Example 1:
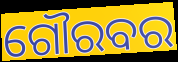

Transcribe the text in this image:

ଗୌରବର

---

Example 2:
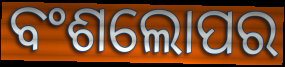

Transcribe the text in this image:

ବଂଶଲୋପର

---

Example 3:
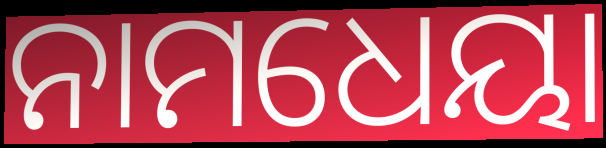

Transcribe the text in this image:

ନାମଧେୟା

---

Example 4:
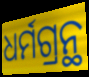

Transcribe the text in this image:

ଧର୍ମଗ୍ରନ୍ଥ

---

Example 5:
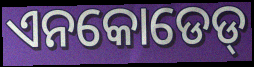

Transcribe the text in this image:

ଏନକୋଡେଡ୍